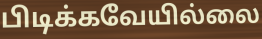
பிடிக்கவேயில்லை